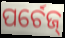
ପର୍ଚେଜ୍